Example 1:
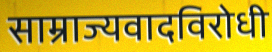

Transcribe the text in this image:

साम्राज्यवादविरोधी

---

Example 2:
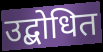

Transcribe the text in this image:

उद्बोधित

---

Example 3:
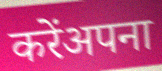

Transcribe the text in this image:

करेंअपना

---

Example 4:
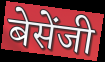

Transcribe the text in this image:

बेसेंजी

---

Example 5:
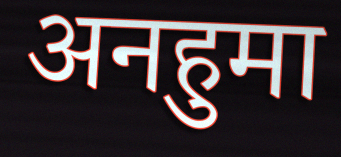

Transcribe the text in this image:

अनहुमा